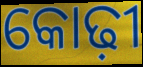
କୋଢ଼ୀ